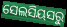
ସେଲସିୟସରୁ